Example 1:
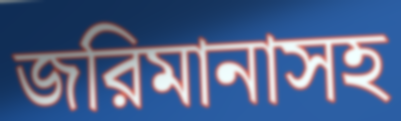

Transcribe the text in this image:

জরিমানাসহ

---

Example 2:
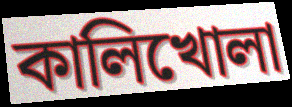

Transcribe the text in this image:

কালিখোলা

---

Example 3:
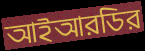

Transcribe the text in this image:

আইআরডির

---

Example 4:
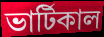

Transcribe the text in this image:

ভার্টিকাল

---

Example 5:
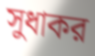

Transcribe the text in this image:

সুধাকর